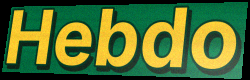
Hebdo